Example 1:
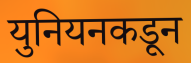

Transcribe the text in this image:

युनियनकडून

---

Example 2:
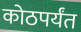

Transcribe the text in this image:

कोठपर्यंत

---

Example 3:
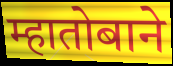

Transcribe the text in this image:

म्हातोबाने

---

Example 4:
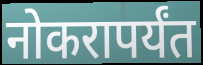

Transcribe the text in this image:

नोकरापर्यंत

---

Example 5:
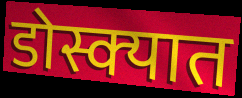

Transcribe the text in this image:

डोस्क्यात